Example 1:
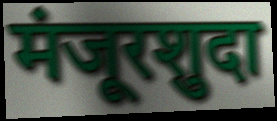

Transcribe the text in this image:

मंजूरशुदा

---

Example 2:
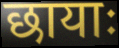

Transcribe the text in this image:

छायाः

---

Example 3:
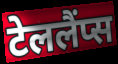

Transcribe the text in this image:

टेललैंप्स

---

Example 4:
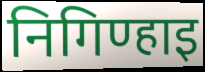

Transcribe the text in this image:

निगिण्हाइ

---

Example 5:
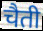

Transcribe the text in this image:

चैती